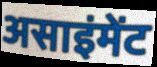
असाइंमेंट